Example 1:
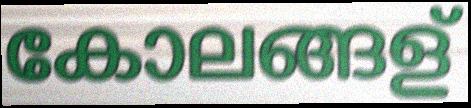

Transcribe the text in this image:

കോലങ്ങള്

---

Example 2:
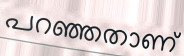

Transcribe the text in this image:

പറഞ്ഞതാണ്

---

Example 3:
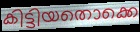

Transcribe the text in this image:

കിട്ടിയതൊക്കെ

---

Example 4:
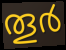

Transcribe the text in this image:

തൂർ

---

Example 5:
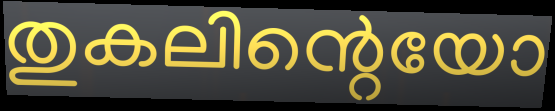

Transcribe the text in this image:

തുകലിന്റെയോ